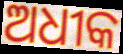
ଅଧୀକ